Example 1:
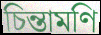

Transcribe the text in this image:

চিন্তামণি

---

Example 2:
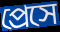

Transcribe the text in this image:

প্রেসে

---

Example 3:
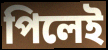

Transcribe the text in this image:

পিলেই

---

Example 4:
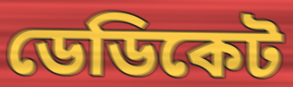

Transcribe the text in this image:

ডেডিকেট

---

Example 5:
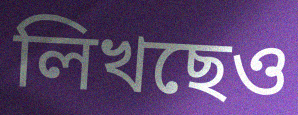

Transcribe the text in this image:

লিখছেও